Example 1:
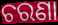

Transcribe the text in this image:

ଚରଣା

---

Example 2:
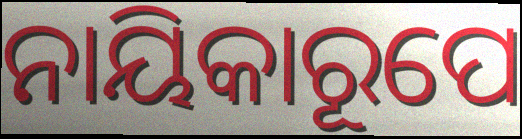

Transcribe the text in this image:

ନାୟିକାରୂପେ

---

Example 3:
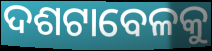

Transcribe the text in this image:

ଦଶଟାବେଳକୁ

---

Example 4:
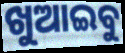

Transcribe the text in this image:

ଖୁଆଇବୁ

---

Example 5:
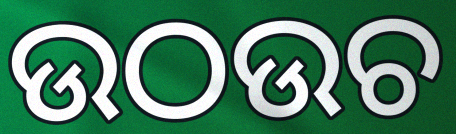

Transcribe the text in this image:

ଉଠଉଚ